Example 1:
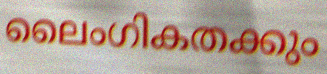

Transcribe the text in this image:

ലൈംഗികതക്കും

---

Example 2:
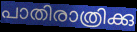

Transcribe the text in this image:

പാതിരാത്രിക്കു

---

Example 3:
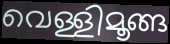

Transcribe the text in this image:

വെള്ളിമൂങ്ങ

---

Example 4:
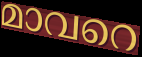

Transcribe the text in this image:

മാവറെ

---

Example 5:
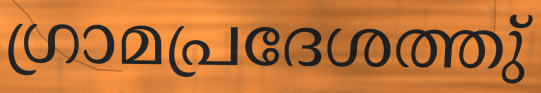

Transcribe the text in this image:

ഗ്രാമപ്രദേശത്തു്